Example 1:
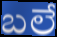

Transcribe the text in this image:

బలే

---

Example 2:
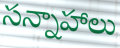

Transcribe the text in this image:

సన్నాహాలు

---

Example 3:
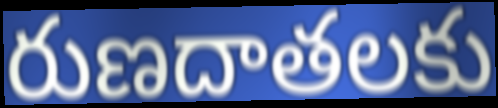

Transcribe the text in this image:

రుణదాతలకు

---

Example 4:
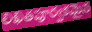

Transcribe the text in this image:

లిఖితపూర్వకమైన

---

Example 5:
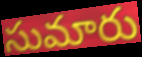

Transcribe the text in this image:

సుమారు